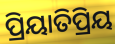
ପ୍ରିୟାତିପ୍ରିୟ